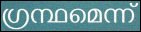
ഗ്രന്ഥമെന്ന്